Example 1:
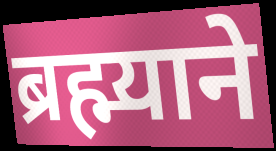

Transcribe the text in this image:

ब्रह्म्याने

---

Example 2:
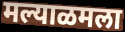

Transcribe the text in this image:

मल्याळमला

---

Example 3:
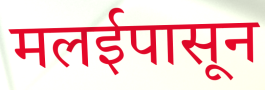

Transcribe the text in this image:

मलईपासून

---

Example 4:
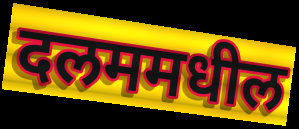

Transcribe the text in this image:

दलममधील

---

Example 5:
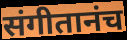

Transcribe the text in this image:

संगीतानंच